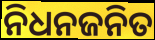
ନିଧନଜନିତ